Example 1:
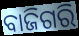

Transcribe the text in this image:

ବାଜିଗରି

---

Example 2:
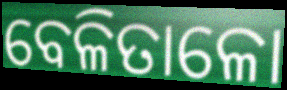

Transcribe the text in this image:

ବେଳିତାଳୋ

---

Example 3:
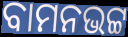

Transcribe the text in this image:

ବାମନଭଟ୍ଟ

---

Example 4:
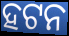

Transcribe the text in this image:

ହଟନ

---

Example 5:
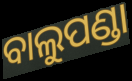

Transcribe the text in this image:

ବାଲୁପଣ୍ଡା